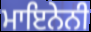
ਮਾਇਨੇਨੀ